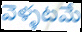
వెళ్ళటమే